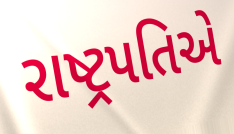
રાષ્ટ્રપતિએ